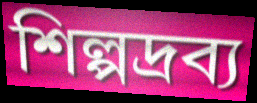
শিল্পদ্রব্য